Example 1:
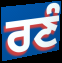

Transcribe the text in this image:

ਰਣੰ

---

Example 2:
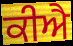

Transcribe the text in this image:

ਕੀਐ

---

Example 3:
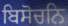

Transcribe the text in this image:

ਬਿਸੋਚਨਿ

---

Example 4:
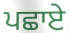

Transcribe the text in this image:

ਪਛਾਏ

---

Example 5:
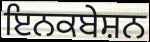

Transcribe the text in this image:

ਇਨਕਬੇਸ਼ਨ